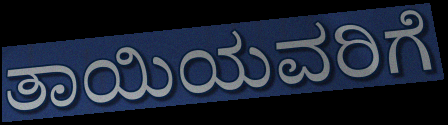
ತಾಯಿಯವರಿಗೆ